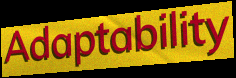
Adaptability